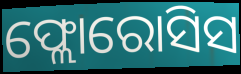
ଫ୍ଲୋରୋସିସ